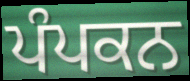
ਪੰਪਕਨ